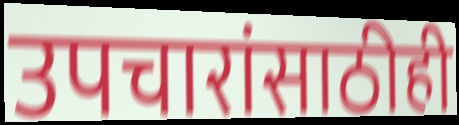
उपचारांसाठीही